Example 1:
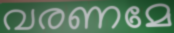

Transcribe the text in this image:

വരണമേ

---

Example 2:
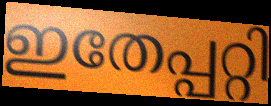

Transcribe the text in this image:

ഇതേപ്പറ്റി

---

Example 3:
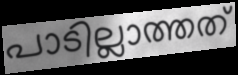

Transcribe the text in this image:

പാടില്ലാത്തത്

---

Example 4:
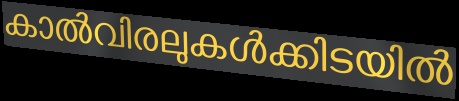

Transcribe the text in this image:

കാൽവിരലുകൾക്കിടയിൽ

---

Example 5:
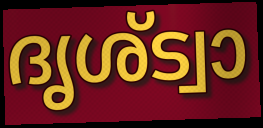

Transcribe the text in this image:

ദൃശ്ട്വാ